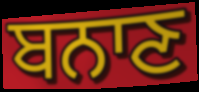
ਬਨਾਣ